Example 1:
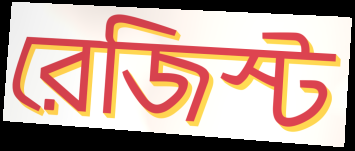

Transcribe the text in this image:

রেজিস্ট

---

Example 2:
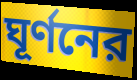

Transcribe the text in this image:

ঘূর্ণনের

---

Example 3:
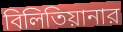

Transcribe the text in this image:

বিলিতিয়ানার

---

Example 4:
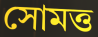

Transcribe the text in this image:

সোমত্ত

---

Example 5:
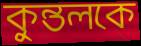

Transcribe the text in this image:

কুন্তলকে